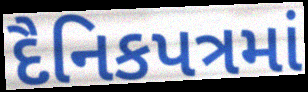
દૈનિકપત્રમાં